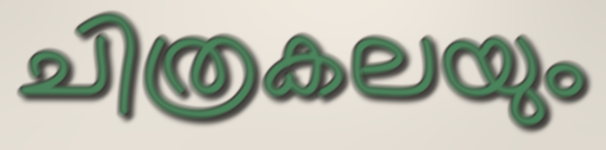
ചിത്രകലയും